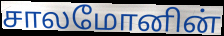
சாலமோனின்